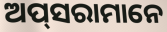
ଅପ୍‍ସରାମାନେ